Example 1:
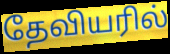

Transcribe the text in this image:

தேவியரில்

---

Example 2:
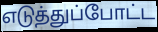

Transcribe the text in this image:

எடுத்துப்போட்ட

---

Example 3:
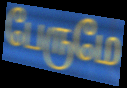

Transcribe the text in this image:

பேருமே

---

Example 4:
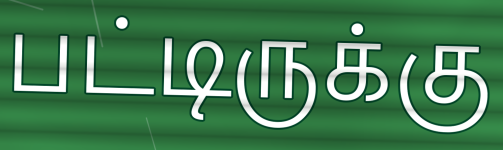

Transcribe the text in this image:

பட்டிருக்கு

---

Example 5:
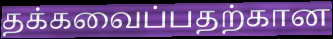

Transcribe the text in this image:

தக்கவைப்பதற்கான